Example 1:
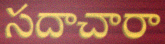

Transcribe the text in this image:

సదాచారా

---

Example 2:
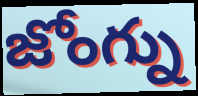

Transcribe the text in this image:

జోంగ్ను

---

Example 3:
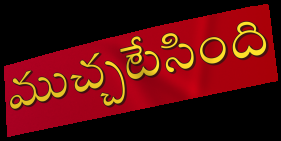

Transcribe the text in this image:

ముచ్చటేసింది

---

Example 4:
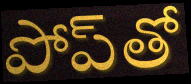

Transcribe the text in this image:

పోప్‌తో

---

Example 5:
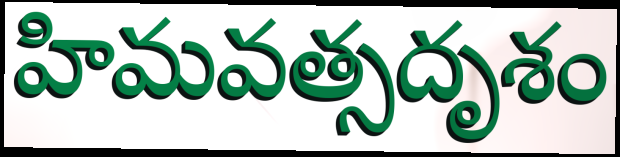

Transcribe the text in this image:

హిమవత్సదృశం